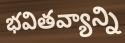
భవితవ్యాన్ని